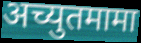
अच्युतमामा